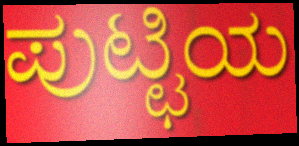
ಪುಟ್ಟಿಯ